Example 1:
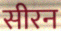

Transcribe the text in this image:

सीरन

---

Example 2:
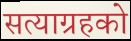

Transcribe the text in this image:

सत्याग्रहको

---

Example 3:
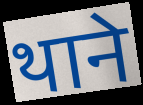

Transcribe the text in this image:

थाने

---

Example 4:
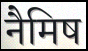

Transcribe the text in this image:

नैमिष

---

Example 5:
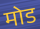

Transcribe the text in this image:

मोड